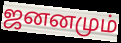
ஜனனமும்